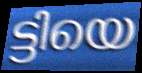
ട്ടിയെ